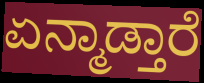
ಏನ್ಮಾಡ್ತಾರೆ